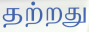
தற்றது